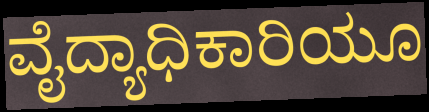
ವೈದ್ಯಾಧಿಕಾರಿಯೂ